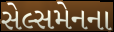
સેલ્સમેનના